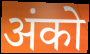
अंको